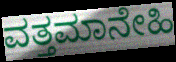
ವತ್ತಮಾನೇಹಿ